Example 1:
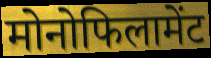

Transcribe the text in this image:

मोनोफिलामेंट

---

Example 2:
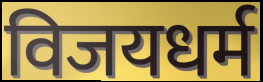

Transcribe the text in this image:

विजयधर्म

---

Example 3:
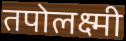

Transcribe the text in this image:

तपोलक्ष्मी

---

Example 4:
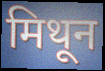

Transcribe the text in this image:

मिथून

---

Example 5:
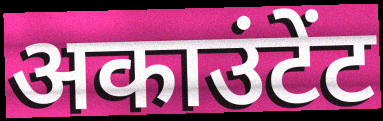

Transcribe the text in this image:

अकाउंटेंट